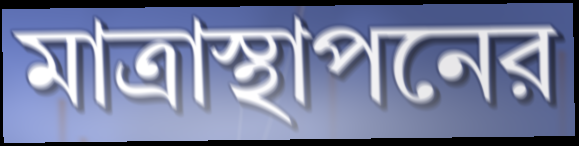
মাত্রাস্থাপনের